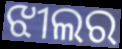
ଝୀଲର